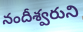
నందీశ్వరుని